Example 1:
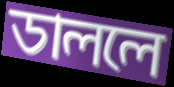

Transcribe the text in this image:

ডাললে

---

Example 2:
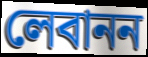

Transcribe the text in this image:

লেবানন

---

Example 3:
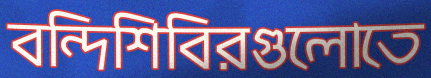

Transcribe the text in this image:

বন্দিশিবিরগুলোতে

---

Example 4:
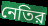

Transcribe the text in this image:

নেতির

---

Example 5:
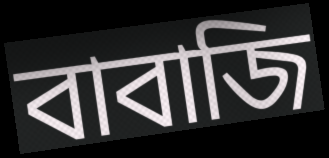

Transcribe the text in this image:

বাবাজি